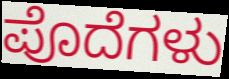
ಪೊದೆಗಳು